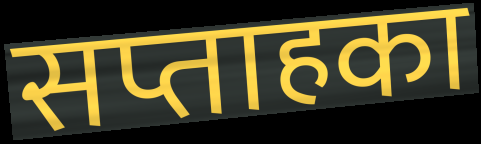
सप्ताहका